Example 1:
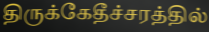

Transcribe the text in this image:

திருக்கேதீச்சரத்தில்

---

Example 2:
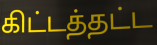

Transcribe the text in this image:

கிட்டத்தட்ட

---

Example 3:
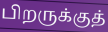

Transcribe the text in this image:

பிறருக்குத்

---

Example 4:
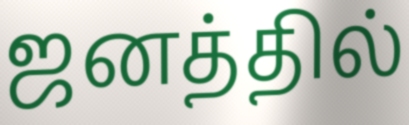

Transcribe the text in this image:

ஜனத்தில்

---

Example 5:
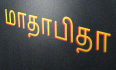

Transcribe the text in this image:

மாதாபிதா